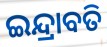
ଇନ୍ଦ୍ରାବତି